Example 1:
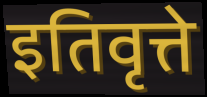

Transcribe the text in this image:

इतिवृत्ते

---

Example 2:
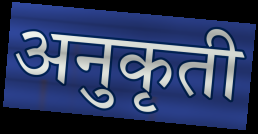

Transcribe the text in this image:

अनुकृती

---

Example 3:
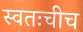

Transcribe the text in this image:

स्वतःचीच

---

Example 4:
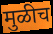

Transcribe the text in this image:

मुळीच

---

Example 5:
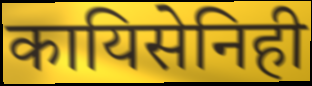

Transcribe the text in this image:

कायिसेनिही